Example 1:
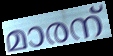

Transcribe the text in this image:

മാരന്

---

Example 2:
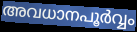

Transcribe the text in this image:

അവധാനപൂർവ്വം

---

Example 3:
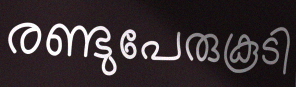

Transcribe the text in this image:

രണ്ടുപേരുകൂടി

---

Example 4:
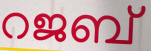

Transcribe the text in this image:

റജബ്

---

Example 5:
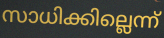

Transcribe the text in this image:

സാധിക്കില്ലെന്ന്